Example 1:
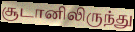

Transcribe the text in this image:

சூடானிலிருந்து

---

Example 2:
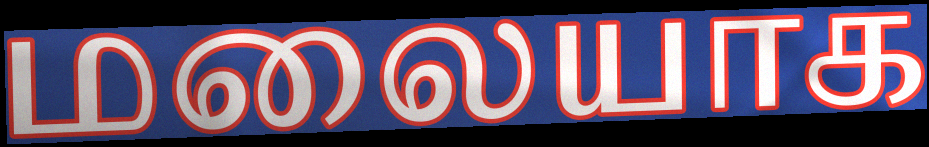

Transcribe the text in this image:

மலையாக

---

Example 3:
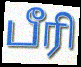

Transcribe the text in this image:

பீரி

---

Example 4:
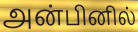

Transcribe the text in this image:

அன்பினில்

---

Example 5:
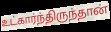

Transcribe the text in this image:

உட்கார்ந்திருந்தான்